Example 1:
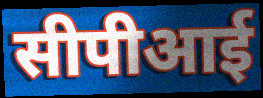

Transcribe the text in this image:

सीपीआई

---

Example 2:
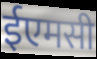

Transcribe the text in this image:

ईएमसी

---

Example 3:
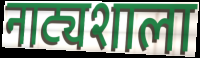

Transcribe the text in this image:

नाट्यशाला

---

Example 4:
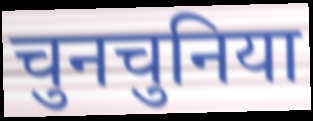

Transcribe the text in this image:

चुनचुनिया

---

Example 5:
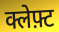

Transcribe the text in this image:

क्लेफ़्ट